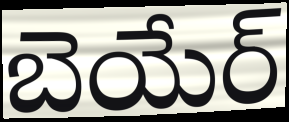
బెయేర్